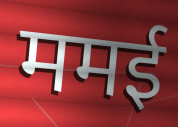
ममई